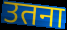
उतना